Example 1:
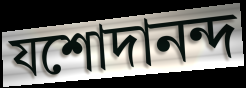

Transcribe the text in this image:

যশোদানন্দ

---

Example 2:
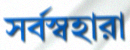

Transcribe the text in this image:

সর্বস্বহারা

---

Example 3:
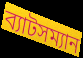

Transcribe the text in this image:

ব্যাটসম্যান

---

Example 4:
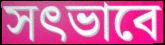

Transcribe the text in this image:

সৎভাবে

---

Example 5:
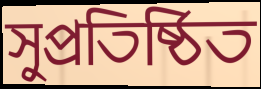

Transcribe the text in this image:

সুপ্রতিষ্ঠিত